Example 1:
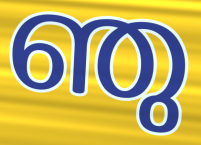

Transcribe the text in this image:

ഞു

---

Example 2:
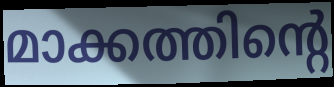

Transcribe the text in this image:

മാക്കത്തിന്റെ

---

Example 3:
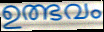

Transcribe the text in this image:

ഉത്ഭവം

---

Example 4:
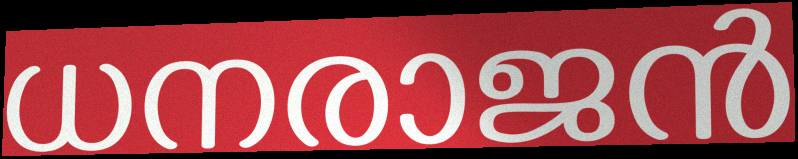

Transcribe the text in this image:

ധനരാജൻ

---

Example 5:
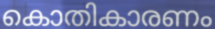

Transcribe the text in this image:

കൊതികാരണം